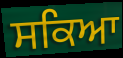
ਸਕਿਆ